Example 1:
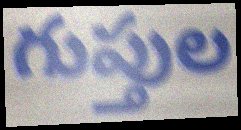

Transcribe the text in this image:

గుప్తుల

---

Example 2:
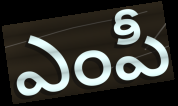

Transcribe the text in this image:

ఎంపీ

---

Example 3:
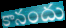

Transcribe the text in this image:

కానందు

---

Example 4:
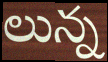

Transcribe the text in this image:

లున్న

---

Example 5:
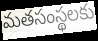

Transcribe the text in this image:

మతసంస్థలకు